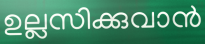
ഉല്ലസിക്കുവാൻ